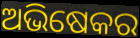
ଅଭିଷେକର